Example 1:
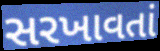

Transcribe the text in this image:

સરખાવતાં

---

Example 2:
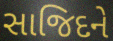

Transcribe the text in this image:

સાજિદને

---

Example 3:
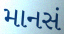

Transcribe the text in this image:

માનસં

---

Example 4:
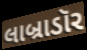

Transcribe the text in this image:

લાબ્રાડૉર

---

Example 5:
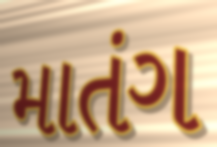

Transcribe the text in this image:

માતંગ